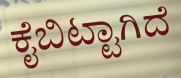
ಕೈಬಿಟ್ಟಾಗಿದೆ